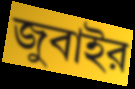
জুবাইর